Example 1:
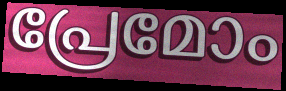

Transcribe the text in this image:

പ്രേമോം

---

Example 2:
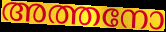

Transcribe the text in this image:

അത്തനോ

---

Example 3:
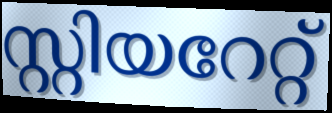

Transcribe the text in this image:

സ്റ്റിയറേറ്റ്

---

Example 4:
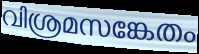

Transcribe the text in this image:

വിശ്രമസങ്കേതം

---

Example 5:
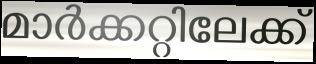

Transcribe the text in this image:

മാർക്കറ്റിലേക്ക്